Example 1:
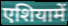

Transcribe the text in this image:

एशियामें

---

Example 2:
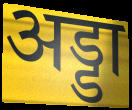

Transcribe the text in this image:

अड्डा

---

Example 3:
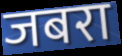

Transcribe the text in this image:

जबरा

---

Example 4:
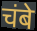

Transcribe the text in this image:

चंबे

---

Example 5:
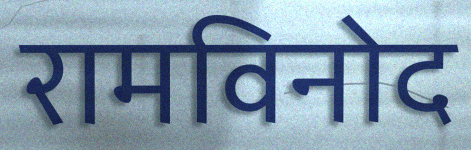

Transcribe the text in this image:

रामविनोद